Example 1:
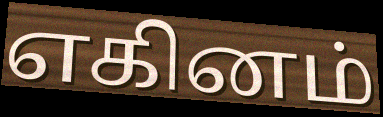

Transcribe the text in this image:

எகினம்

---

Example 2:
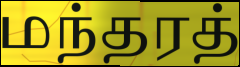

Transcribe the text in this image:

மந்தரத்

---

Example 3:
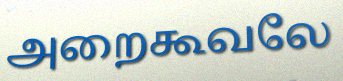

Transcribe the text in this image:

அறைகூவலே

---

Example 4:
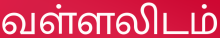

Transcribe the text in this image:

வள்ளலிடம்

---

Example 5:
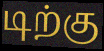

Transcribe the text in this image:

டிற்கு